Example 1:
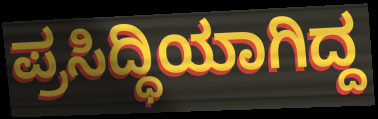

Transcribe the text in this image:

ಪ್ರಸಿದ್ಧಿಯಾಗಿದ್ದ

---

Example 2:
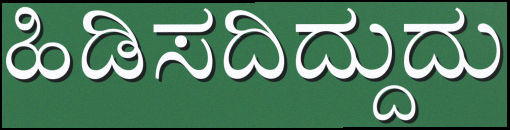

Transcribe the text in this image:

ಹಿಡಿಸದಿದ್ದುದು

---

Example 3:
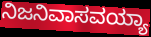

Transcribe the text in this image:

ನಿಜನಿವಾಸವಯ್ಯಾ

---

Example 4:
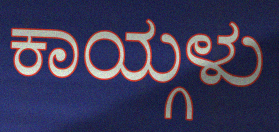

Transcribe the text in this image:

ಕಾಯ್ಗಳು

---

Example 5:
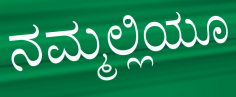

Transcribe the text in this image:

ನಮ್ಮಲ್ಲಿಯೂ